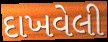
દાખવેલી